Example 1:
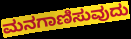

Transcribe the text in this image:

ಮನಗಾಣಿಸುವುದು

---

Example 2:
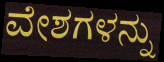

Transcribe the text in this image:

ವೇಶಗಳನ್ನು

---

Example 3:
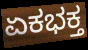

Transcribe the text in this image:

ಏಕಭಕ್ತ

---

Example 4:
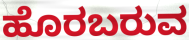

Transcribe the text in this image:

ಹೊರಬರುವ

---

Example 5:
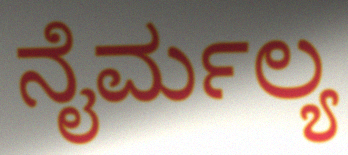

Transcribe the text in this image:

ನೈರ್ಮಲ್ಯ